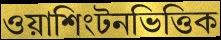
ওয়াশিংটনভিত্তিক